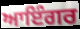
ਆਇੰਗਰ